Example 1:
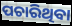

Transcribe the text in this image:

ପଚାରିଥିବା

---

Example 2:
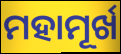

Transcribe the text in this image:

ମହାମୂର୍ଖ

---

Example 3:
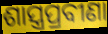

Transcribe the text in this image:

ଶାସ୍ତ୍ରପ୍ରବୀଣା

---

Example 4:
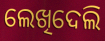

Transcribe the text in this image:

ଲେଖିଦେଲି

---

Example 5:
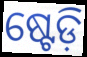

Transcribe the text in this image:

ଷ୍ଟେଡ଼ି